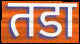
तडा